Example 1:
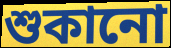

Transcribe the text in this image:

শুকানো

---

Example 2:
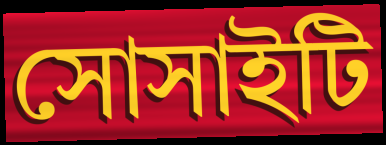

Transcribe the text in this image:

সোসাইটি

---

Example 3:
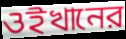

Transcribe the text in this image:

ওইখানের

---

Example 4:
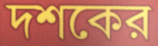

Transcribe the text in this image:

দশকের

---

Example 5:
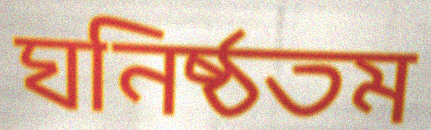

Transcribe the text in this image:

ঘনিষ্ঠতম